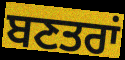
ਬਣਤਰਾਂ